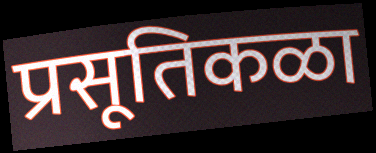
प्रसूतिकळा